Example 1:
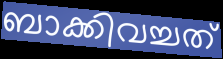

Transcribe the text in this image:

ബാക്കിവച്ചത്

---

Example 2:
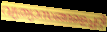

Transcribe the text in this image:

വ്യത്യാസങ്ങളെപ്പറ്റി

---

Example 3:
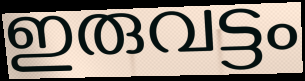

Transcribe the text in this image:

ഇരുവട്ടം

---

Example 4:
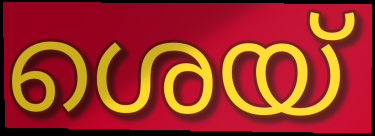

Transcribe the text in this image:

ശെയ്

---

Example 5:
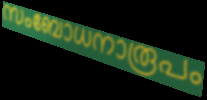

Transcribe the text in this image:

സംബോധനാരൂപം